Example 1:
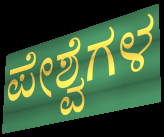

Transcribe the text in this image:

ಪೇಶ್ವೆಗಳ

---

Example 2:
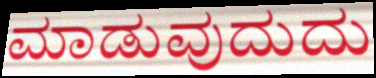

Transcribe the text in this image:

ಮಾಡುವುದುದು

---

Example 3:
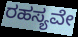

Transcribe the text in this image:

ರಹಸ್ಯವೇ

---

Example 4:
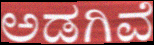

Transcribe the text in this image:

ಅಡಗಿವೆ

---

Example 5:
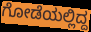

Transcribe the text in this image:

ಗೋಡೆಯಲ್ಲಿದ್ದ